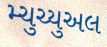
મ્ચુચ્યુઅલ